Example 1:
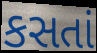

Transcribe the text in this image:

કસતાં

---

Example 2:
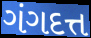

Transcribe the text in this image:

ગંગદત્ત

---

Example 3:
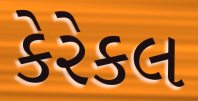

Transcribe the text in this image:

કેરેકલ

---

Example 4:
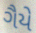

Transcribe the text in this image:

ગૈયે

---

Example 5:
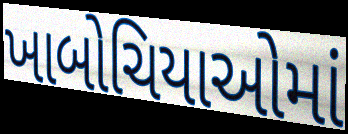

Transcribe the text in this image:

ખાબોચિયાઓમાં